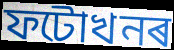
ফটোখনৰ